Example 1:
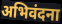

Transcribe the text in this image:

अभिवंदना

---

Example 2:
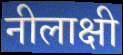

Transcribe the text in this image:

नीलाक्षी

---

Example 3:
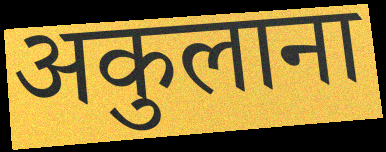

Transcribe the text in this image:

अकुलाना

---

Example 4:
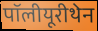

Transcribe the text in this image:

पॉलीयूरीथेन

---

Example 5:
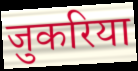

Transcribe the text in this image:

जुकरिया